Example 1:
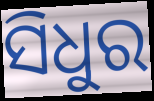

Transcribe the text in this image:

ସିଧୁର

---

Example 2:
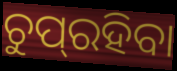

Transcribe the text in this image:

ଚୁପ୍‌ରହିବା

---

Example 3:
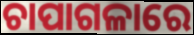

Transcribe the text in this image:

ଚାପାଗଳାରେ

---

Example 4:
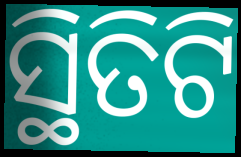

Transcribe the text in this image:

ସ୍ଥିତିଟି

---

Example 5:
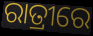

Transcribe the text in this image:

ରାତ୍ରୀରେ